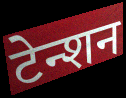
टेन्शन